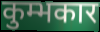
कुम्भकार